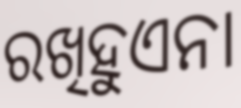
ରଖିହୁଏନା